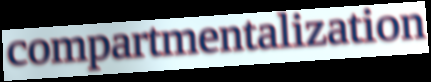
compartmentalization